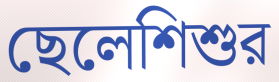
ছেলেশিশুর